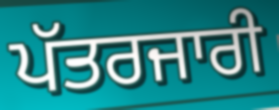
ਪੱਤਰਜਾਰੀ